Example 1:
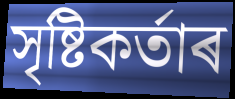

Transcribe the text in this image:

সৃষ্টিকৰ্তাৰ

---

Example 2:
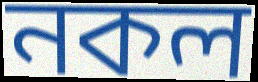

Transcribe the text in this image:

নকল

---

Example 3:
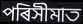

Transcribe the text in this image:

পৰিসীমাত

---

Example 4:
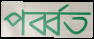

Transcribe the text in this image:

পৰ্ব্বত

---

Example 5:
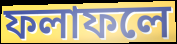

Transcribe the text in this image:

ফলাফলে